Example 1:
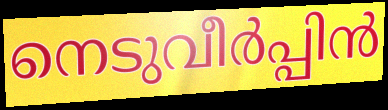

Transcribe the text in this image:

നെടുവീർപ്പിൻ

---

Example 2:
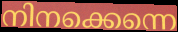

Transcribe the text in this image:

നിനക്കെന്നെ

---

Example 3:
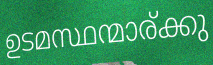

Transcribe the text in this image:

ഉടമസ്ഥന്മാര്ക്കു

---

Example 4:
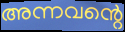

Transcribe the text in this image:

അന്നവന്റെ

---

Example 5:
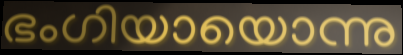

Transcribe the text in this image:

ഭംഗിയായൊന്നു